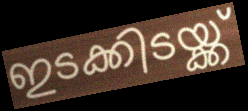
ഇടക്കിടയ്ക്ക്